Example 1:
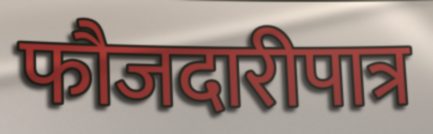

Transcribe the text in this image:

फौजदारीपात्र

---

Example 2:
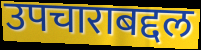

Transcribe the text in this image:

उपचाराबद्दल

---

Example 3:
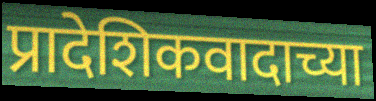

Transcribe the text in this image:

प्रादेशिकवादाच्या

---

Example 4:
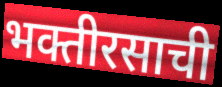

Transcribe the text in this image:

भक्तीरसाची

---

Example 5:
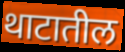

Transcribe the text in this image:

थाटातील